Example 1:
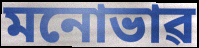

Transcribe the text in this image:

মনোভাৱ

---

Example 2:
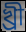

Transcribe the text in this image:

খ্ৰী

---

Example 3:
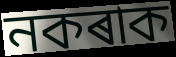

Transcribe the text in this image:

নকৰাক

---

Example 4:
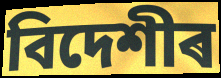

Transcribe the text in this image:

বিদেশীৰ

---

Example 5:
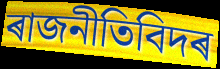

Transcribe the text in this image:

ৰাজনীতিবিদৰ